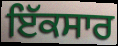
ਇੱਕਸਾਰ